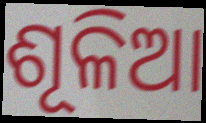
ଶୂଳିଆ